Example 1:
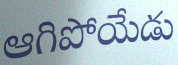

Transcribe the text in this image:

ఆగిపోయేడు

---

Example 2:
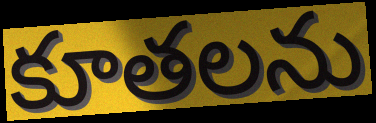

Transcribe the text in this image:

కూతలను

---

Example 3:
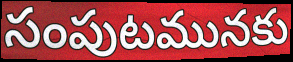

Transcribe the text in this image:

సంపుటమునకు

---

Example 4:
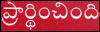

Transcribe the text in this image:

ప్రార్థించింది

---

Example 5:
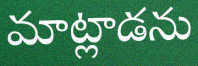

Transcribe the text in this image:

మాట్లాడను